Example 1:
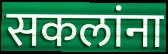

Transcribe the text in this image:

सकलांना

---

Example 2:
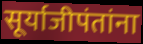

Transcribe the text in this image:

सूर्याजीपंतांना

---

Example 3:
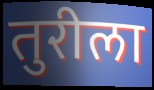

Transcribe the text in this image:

तुरीला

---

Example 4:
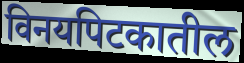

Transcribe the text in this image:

विनयपिटकातील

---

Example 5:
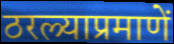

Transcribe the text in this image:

ठरल्याप्रमाणें